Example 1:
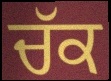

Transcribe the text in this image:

ਚੱਕ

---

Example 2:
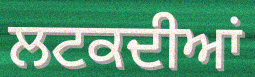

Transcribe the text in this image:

ਲਟਕਦੀਆਂ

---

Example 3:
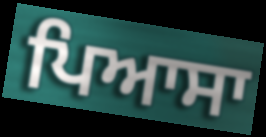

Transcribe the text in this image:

ਪਿਆਸਾ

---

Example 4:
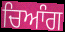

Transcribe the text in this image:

ਚਿਆੰਗ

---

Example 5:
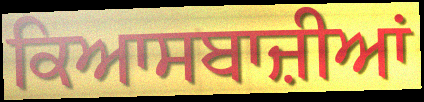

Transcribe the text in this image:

ਕਿਆਸਬਾਜ਼ੀਆਂ